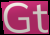
Gt